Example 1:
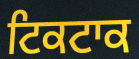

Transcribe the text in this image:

ਟਿਕਟਾਕ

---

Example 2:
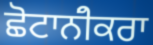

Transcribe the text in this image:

ਛੋਟਾਨੀੱਕਰਾ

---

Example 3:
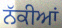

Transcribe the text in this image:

ਨੱਕੀਆਂ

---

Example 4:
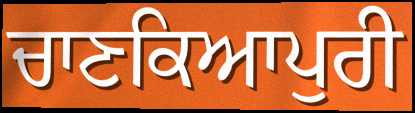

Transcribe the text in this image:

ਚਾਣਕਿਆਪੁਰੀ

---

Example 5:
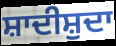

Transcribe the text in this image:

ਸ਼ਾਦੀਸ਼ੁਦਾ